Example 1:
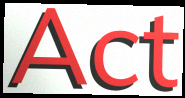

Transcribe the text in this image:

Act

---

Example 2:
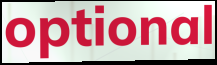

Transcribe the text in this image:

optional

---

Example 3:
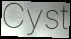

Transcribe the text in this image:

Cyst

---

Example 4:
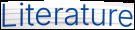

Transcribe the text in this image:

Literature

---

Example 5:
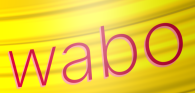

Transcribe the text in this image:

wabo